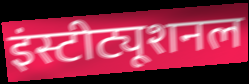
इंस्टीट्यूशनल